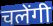
चलेंगी